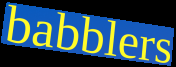
babblers